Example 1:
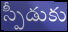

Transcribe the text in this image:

స్పీడుకు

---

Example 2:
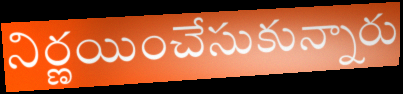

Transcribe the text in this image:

నిర్ణయించేసుకున్నారు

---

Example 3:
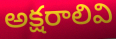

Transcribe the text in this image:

అక్షరాలివి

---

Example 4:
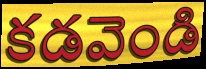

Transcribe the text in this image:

కడవెండి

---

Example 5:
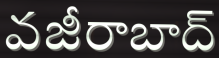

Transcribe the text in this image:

వజీరాబాద్